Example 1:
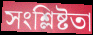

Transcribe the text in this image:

সংশ্লিষ্টতা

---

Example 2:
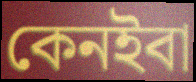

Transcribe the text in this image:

কেনইবা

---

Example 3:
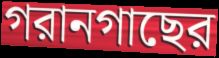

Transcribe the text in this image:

গরানগাছের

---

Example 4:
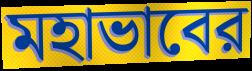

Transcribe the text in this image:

মহাভাবের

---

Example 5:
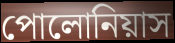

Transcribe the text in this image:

পোলোনিয়াস